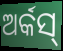
ଅର୍କସ୍